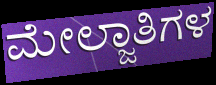
ಮೇಲ್ಜಾತಿಗಳ